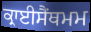
ਕ੍ਰਾਈਸੈਂਥਮਮ